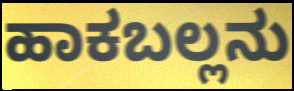
ಹಾಕಬಲ್ಲನು